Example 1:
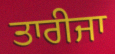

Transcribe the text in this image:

ਤਾਰੀਜਾ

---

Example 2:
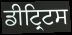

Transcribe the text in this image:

ਡੀਟ੍ਰਿਟਸ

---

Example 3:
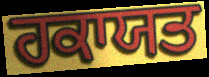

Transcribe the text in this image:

ਹਕਾਯਤ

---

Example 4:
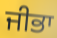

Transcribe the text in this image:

ਜੀਭਾ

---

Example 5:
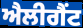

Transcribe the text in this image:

ਐਲੀਗੈਂਟ